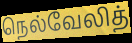
நெல்வேலித்